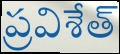
ప్రవిశేత్